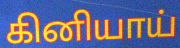
கினியாய்